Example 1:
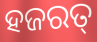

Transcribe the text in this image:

ହଜରତ୍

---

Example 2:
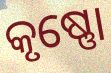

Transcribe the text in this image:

କୃଷ୍ଣୋ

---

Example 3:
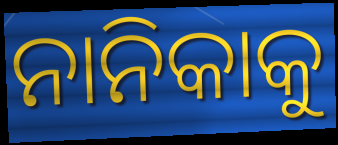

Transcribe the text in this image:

ନାନିକାକୁ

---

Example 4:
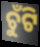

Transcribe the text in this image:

ଚୁଁଟି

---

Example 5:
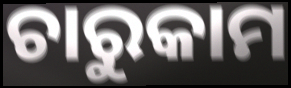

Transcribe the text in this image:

ଚାରୁକାମ